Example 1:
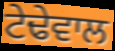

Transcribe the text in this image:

ਟੇਢੇਵਾਲ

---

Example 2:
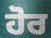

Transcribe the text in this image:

ਹੋਰ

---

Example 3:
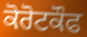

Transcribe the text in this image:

ਕੋਰੋਟਕੌਫ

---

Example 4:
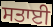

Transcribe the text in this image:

ਸਤਾਈ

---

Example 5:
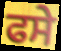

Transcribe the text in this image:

ਫਸੇ